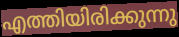
എത്തിയിരിക്കുന്നു